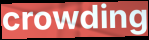
crowding